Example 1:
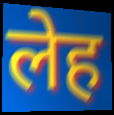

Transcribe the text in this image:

लेह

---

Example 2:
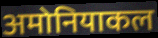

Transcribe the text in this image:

अमोनियाकल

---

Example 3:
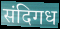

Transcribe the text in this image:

संदिगध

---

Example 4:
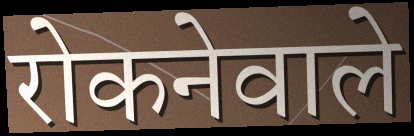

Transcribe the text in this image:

रोकनेवाले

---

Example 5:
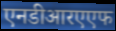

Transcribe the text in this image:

एनडीआरएएफ